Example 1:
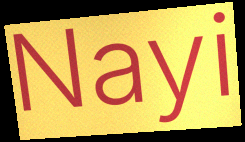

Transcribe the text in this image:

Nayi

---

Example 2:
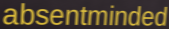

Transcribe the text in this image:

absentminded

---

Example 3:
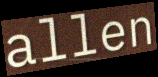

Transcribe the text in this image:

allen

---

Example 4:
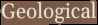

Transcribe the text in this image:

Geological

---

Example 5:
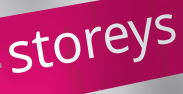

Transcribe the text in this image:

storeys